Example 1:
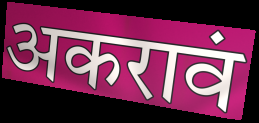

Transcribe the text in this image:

अकरावं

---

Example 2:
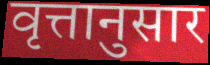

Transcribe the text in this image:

वृत्तानुसार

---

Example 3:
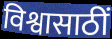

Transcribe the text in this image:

विश्वासाठीं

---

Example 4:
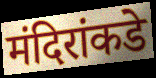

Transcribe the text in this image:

मंदिरांकडे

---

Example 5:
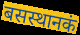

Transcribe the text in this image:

बसस्थानकं